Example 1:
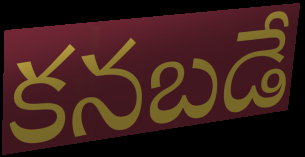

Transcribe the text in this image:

కనబడే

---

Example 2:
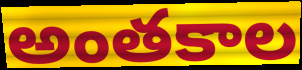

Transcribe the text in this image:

అంతకాల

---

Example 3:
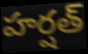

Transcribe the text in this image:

హర్షత్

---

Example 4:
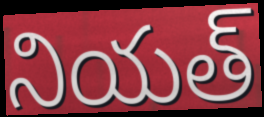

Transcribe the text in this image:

నియత్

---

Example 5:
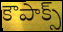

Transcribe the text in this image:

కౌపాక్స్